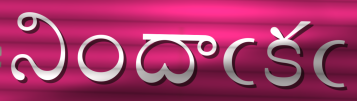
నిందాఁకఁ